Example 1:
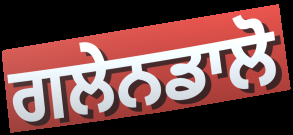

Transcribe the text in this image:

ਗਲੇਨਡਾਲੋ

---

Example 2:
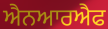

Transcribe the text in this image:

ਐਨਆਰਐਫ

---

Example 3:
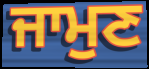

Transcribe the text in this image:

ਜਾਮੁਣ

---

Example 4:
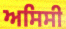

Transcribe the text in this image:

ਅਸਿਸੀ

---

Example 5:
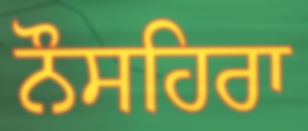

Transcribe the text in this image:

ਨੌਸਹਿਰਾ